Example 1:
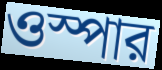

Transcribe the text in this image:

ওস্পার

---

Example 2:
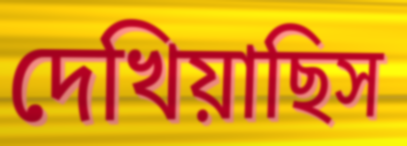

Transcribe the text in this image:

দেখিয়াছিস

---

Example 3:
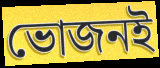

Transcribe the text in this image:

ভোজনই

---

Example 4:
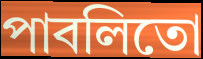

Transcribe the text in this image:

পাবলিতো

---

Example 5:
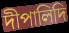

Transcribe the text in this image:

দীপালিদি